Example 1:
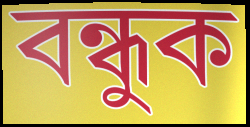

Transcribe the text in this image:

বন্ধুক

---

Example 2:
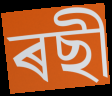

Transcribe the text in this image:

ৰছী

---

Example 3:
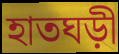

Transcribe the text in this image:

হাতঘড়ী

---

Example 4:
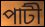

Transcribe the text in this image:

পাটী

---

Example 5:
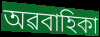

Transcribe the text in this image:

অৱবাহিকা